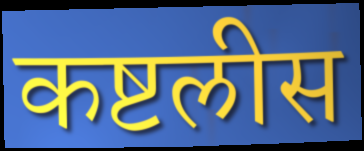
कष्टलीस